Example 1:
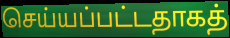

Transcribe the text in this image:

செய்யப்பட்டதாகத்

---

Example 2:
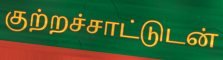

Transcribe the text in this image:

குற்றச்சாட்டுடன்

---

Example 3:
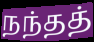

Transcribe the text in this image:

நந்தத்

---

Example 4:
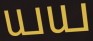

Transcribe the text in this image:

யய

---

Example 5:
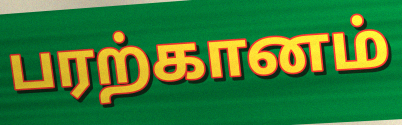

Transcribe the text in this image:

பரற்கானம்